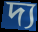
দ্য